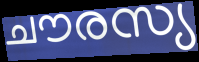
ചൗരസ്യ